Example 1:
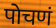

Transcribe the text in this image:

पोचणं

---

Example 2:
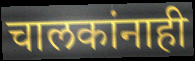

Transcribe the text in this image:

चालकांनाही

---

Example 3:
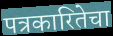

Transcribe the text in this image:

पत्रकारितेचा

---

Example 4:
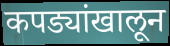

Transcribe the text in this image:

कपड्यांखालून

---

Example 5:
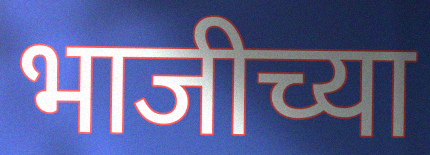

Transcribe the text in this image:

भाजीच्या